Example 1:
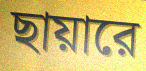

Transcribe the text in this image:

ছায়ারে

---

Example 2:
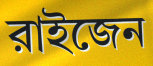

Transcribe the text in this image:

রাইজেন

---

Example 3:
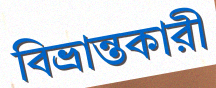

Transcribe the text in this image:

বিভ্রান্তকারী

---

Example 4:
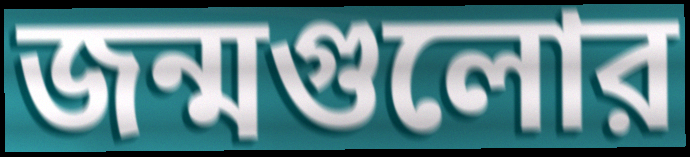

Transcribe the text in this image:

জন্মগুলোর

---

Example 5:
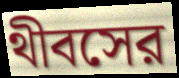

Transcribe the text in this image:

থীবসের